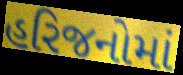
હરિજનોમાં